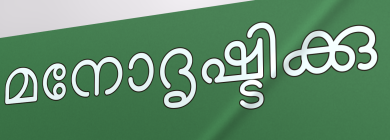
മനോദൃഷ്ടിക്കു